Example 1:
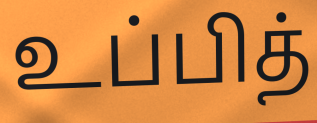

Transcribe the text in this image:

உப்பித்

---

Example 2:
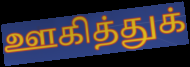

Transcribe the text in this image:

ஊகித்துக்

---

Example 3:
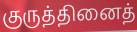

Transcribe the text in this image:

குருத்தினைத்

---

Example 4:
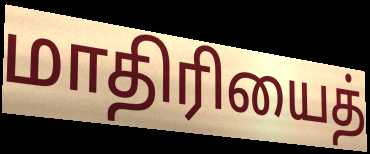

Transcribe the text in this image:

மாதிரியைத்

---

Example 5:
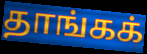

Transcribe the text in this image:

தாங்கக்